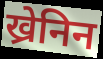
ख्रेनिन